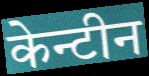
केन्टीन